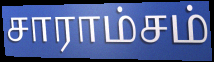
சாராம்சம்